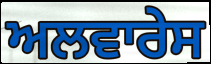
ਅਲਵਾਰੇਸ